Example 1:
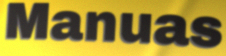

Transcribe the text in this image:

Manuas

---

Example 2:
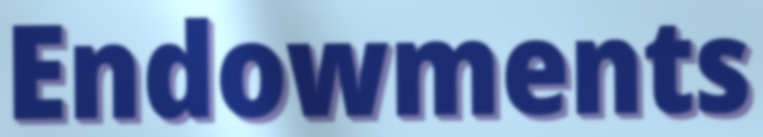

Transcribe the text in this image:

Endowments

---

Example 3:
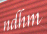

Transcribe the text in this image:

ndhm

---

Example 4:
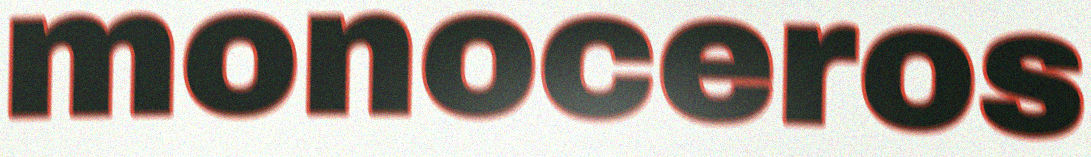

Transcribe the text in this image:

monoceros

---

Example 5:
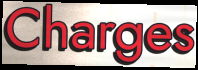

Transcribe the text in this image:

Charges